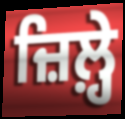
ਜ਼ਿਲ਼੍ਹੇ